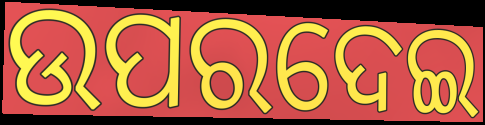
ଉପରଦେଇ